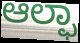
ಆಲ್ಫಾ